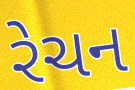
રેચન